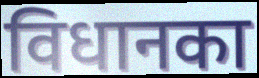
विधानका